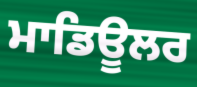
ਮਾਡਿਊਲਰ